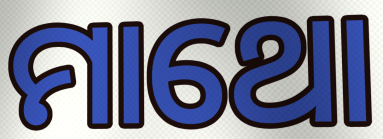
ମାଥୋ